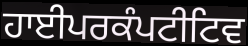
ਹਾਈਪਰਕੰਪਟੀਟਿਵ